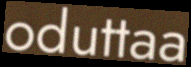
oduttaa